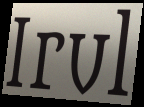
Irul